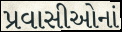
પ્રવાસીઓનાં